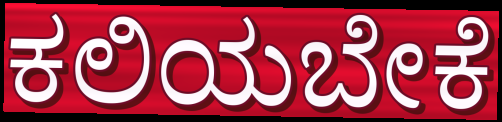
ಕಲಿಯಬೇಕೆ